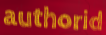
authorid